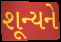
શૂન્યને